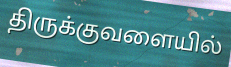
திருக்குவளையில்